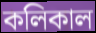
কলিকাল